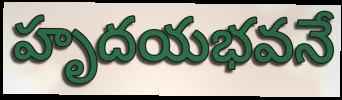
హృదయభవనే